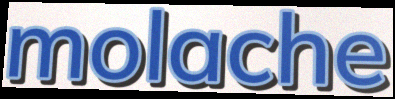
molache